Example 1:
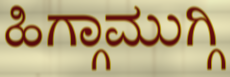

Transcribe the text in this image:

ಹಿಗ್ಗಾಮುಗ್ಗಿ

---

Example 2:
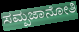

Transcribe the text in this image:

ಸಮ್ಪಜಾನೋತಿ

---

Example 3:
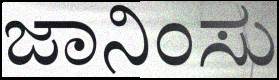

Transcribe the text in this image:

ಜಾನಿಂಸು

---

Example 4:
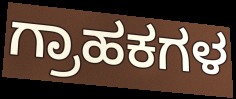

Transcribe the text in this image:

ಗ್ರಾಹಕಗಳ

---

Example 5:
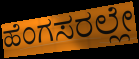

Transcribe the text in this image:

ಹೆಂಗಸರಲ್ಲೇ